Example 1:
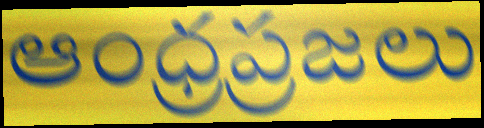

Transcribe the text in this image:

ఆంధ్రప్రజలు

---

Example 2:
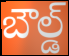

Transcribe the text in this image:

బౌల్డ్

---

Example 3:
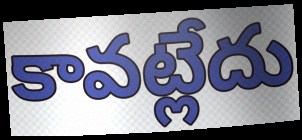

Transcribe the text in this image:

కావట్లేదు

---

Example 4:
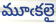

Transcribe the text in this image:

మూఁకలై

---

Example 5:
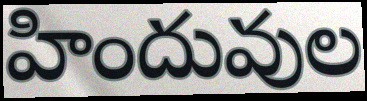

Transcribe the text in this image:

హిందువుల